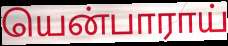
யென்பாராய்